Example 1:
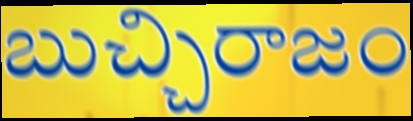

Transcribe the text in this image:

బుచ్చిరాజం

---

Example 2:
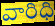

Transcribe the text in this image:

వారిధి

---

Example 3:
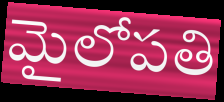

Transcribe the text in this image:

మైలోపతి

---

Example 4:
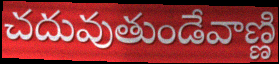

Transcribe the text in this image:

చదువుతుండేవాణ్ణి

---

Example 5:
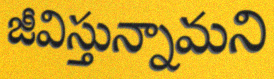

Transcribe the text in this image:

జీవిస్తున్నామని